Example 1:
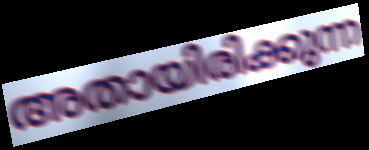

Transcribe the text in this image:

അതായിരിക്കുന്ന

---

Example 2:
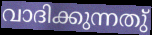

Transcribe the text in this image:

വാദിക്കുന്നതു്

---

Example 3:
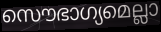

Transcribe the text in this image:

സൌഭാഗ്യമെല്ലാ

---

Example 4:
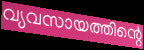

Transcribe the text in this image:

വ്യവസായത്തിന്റെ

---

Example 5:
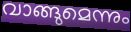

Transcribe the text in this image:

വാങ്ങുമെന്നും